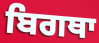
ਬਿਗਥਾ